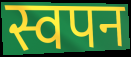
स्वपन